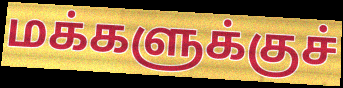
மக்களுக்குச்